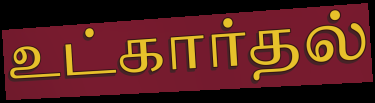
உட்கார்தல்